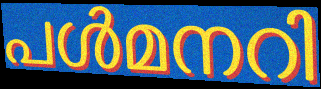
പൾമനറി